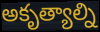
అకృత్యాల్ని